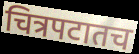
चित्रपटातच